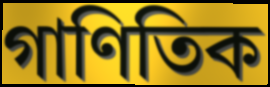
গাণিতিক